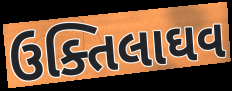
ઉક્તિલાઘવ